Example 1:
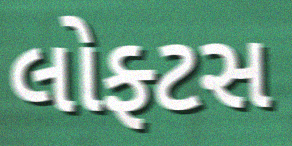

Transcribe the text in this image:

લોફ્ટસ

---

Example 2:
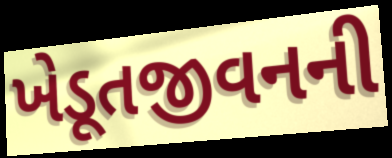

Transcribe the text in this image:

ખેડૂતજીવનની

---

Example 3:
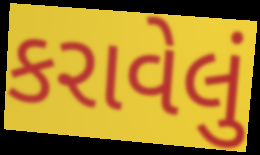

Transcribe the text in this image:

કરાવેલું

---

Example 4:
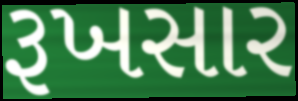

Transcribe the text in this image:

રૂખસાર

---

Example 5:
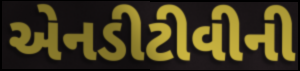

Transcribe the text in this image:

એનડીટીવીની